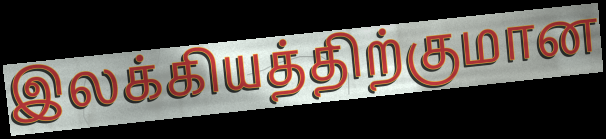
இலக்கியத்திற்குமான